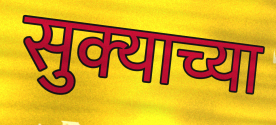
सुक्‍याच्या